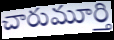
చారుమూర్తి